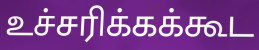
உச்சரிக்கக்கூட